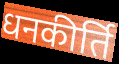
धनकीर्ति